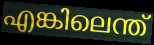
എങ്കിലെന്ത്